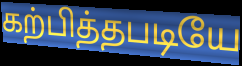
கற்பித்தபடியே